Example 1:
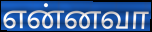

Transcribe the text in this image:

என்னவா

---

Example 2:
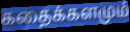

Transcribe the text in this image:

கதைக்களமும்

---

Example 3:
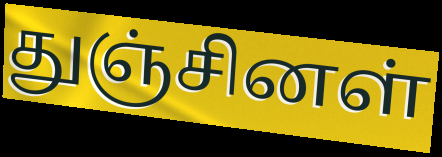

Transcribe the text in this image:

துஞ்சினள்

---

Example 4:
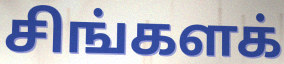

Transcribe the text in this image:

சிங்களக்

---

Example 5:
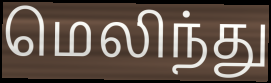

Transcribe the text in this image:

மெலிந்து